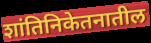
शांतिनिकेतनातील